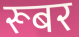
रूबर